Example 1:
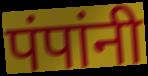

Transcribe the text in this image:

पंपांनी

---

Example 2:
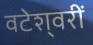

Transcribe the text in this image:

वटेश्वरीं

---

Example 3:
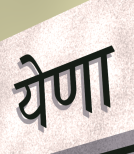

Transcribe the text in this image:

येणा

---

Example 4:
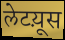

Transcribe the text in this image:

लेटय़ूस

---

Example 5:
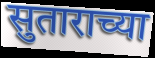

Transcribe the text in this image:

सुताराच्या